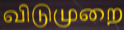
விடுமுறை